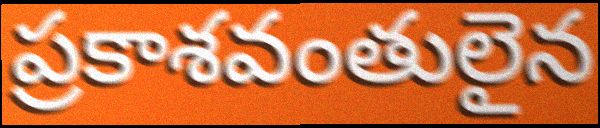
ప్రకాశవంతులైన